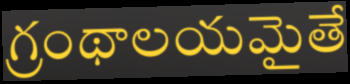
గ్రంథాలయమైతే